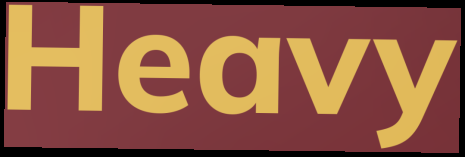
Heavy